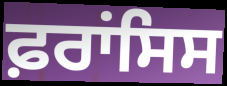
ਫ਼ਰਾਂਸਿਸ